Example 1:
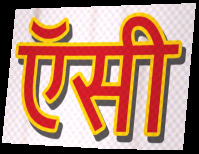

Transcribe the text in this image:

ऍसी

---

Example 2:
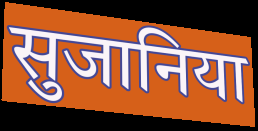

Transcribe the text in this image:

सुजानिया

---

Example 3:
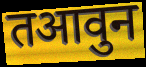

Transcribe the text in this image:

तआवुन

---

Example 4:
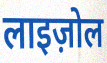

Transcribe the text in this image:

लाइज़ोल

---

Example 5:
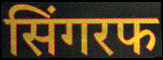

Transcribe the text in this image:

सिंगरफ